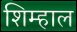
शिम्हाल